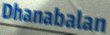
Dhanabalan